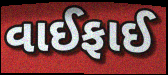
વાઈફાઈ